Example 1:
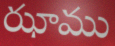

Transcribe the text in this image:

ఝాము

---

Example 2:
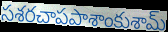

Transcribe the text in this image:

సశరచాపపాశాంకుశామ్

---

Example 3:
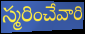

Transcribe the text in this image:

స్మరించేవారి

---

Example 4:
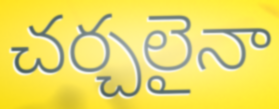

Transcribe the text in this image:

చర్చలైనా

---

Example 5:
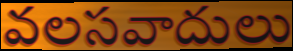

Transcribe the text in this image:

వలసవాదులు